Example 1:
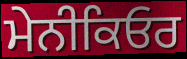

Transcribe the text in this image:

ਮੇਨੀਕਿਓਰ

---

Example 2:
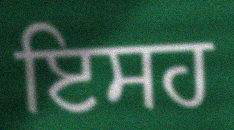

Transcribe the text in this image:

ਇਸਹ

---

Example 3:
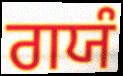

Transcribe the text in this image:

ਗਯੰ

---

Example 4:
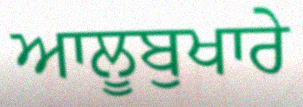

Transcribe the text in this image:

ਆਲੂਬੁਖਾਰੇ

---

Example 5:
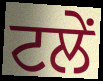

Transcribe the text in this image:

ਟਲੇਂ